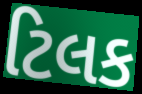
ટિલક